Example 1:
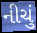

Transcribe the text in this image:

નીચું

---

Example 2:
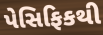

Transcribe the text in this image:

પેસિફિકથી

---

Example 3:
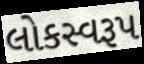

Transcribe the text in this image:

લોકસ્વરૂપ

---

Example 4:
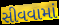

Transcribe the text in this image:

સીવવામાં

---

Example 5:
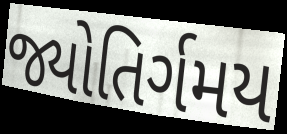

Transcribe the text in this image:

જ્યોતિર્ગમય